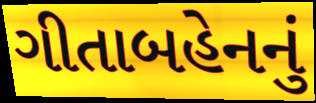
ગીતાબહેનનું